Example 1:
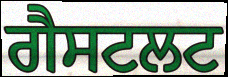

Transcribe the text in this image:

ਗੈਸਟਲਟ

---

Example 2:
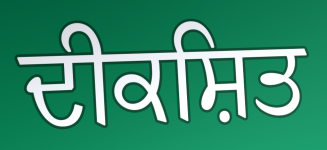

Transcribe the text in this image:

ਦੀਕਸ਼ਿਤ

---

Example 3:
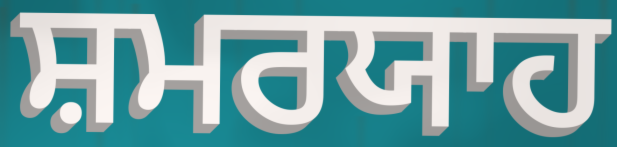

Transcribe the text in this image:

ਸ਼ਮਰਯਾਹ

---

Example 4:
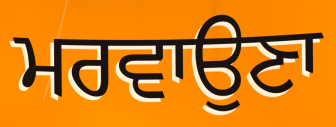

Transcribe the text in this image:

ਮਰਵਾਉਣਾ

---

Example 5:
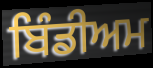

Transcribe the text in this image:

ਬਿੰਡੀਅਮ